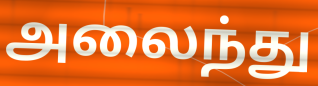
அலைந்து